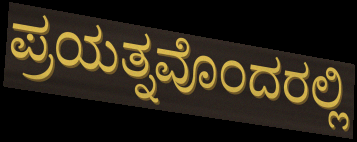
ಪ್ರಯತ್ನವೊಂದರಲ್ಲಿ